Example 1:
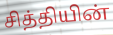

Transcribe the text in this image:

சித்தியின்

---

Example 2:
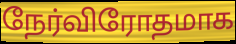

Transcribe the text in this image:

நேர்விரோதமாக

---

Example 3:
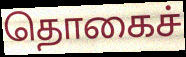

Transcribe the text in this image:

தொகைச்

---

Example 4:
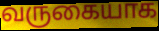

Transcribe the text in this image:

வருகையாக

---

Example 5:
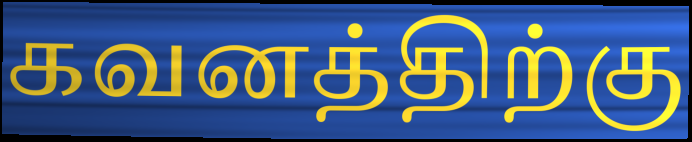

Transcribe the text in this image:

கவனத்திற்கு